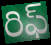
రిఫ్